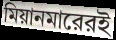
মিয়ানমারেরই